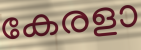
കേരളാ